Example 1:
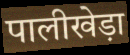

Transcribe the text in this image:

पालीखेड़ा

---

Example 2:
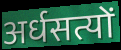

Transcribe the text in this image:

अर्धसत्यों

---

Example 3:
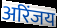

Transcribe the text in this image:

अरिंजय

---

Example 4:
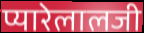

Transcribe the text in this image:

प्यारेलालजी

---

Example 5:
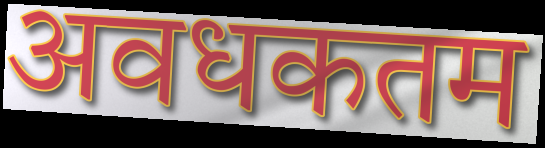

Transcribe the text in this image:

अवधकतम